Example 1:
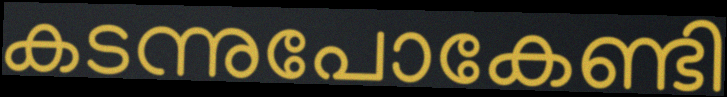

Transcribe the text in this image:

കടന്നുപോകേണ്ടി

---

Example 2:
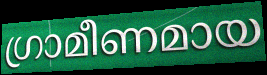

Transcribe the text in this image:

ഗ്രാമീണമായ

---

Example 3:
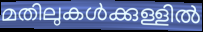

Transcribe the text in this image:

മതിലുകൾക്കുള്ളിൽ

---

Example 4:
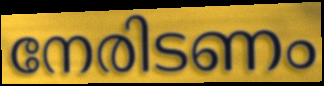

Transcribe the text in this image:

നേരിടണം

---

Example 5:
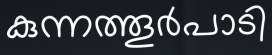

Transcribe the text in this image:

കുന്നത്തൂർപാടി